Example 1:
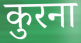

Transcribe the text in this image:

कुरना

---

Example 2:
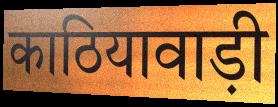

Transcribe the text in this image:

काठियावाड़ी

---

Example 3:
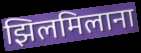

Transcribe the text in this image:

झिलमिलाना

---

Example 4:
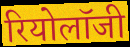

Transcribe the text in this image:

रियोलॉजी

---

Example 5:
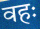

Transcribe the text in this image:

वहः